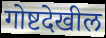
गोष्टदेखील